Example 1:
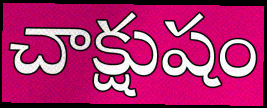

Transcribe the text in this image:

చాక్షుషం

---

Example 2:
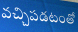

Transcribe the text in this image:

వచ్చిపడటంతో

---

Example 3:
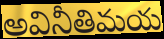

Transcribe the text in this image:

అవినీతిమయ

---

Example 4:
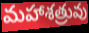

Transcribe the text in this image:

మహాశత్రువు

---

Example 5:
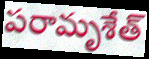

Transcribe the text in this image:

పరామృశేత్